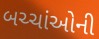
બચ્ચાંઓની